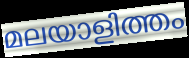
മലയാളിത്തം